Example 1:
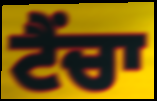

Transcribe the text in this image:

ਟੈਂਚਾ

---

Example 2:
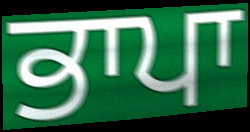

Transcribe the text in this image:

ਭਾਪਾ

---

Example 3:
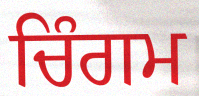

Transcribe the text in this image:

ਚਿੰਗਮ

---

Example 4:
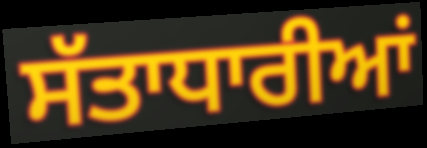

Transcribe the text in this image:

ਸੱਤਾਧਾਰੀਆਂ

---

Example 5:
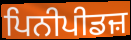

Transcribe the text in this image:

ਪਿਨੀਪੀਡਜ਼